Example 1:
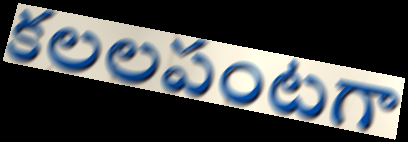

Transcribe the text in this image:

కలలపంటగా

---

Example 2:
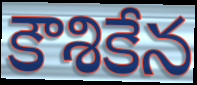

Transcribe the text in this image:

కౌశికేన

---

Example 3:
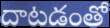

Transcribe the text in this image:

దాటడంతో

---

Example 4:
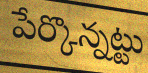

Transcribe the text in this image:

పేర్కొన్నట్టు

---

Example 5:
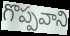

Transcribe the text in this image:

గొప్పవాని